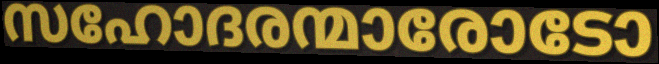
സഹോദരന്മാരോടോ